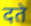
दते